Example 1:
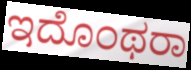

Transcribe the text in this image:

ಇದೊಂಥರಾ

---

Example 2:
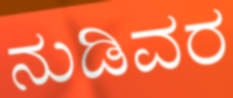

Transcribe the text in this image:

ನುಡಿವರ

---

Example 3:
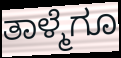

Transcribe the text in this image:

ತಾಳ್ಮೆಗೂ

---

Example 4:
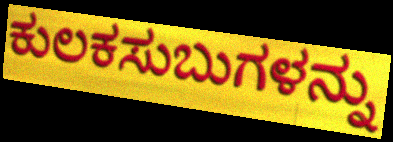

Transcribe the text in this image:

ಕುಲಕಸುಬುಗಳನ್ನು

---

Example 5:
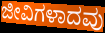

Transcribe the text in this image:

ಜೀವಿಗಳಾದವು